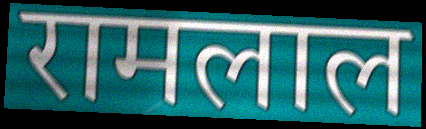
रामलाल